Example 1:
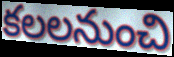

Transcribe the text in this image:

కలలనుంచి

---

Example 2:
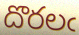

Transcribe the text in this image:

దొరలఁ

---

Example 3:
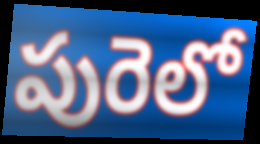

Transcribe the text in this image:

పురెలో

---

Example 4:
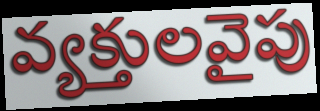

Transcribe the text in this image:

వ్యక్తులవైపు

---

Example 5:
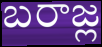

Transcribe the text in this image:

బరాజ్ల